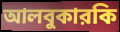
আলবুকারকি